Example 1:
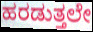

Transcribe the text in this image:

ಹರಡುತ್ತಲೇ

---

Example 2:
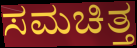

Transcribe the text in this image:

ಸಮಚಿತ್ತ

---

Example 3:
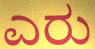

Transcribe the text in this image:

ಎರು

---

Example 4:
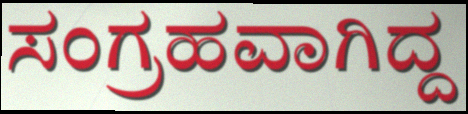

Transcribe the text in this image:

ಸಂಗ್ರಹವಾಗಿದ್ದ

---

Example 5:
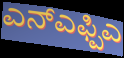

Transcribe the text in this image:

ಎನ್ಎಫ್ಪಿಎ